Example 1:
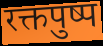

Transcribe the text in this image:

रक्तपुष्प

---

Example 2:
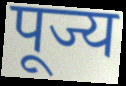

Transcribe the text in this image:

पूज्य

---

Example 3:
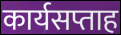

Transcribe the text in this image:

कार्यसप्ताह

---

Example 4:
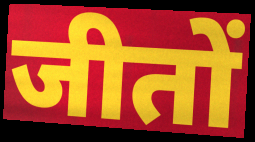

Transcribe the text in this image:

जीतों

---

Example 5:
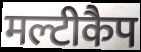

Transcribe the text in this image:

मल्‍टीकैप